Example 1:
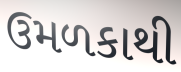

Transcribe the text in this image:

ઉમળકાથી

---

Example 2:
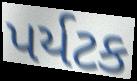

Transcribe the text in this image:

પર્યટક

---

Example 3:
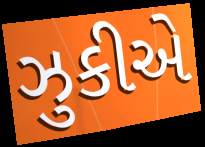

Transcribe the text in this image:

ઝુકીએ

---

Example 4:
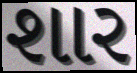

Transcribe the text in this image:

શાર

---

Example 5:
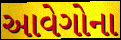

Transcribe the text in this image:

આવેગોના